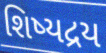
શિષ્યદ્રય